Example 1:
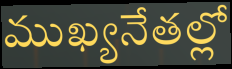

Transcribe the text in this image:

ముఖ్యనేతల్లో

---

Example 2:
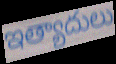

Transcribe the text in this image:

ఇత్యాదులు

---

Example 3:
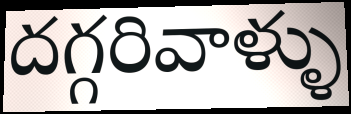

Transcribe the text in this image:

దగ్గరివాళ్ళు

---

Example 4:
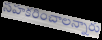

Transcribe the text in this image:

సహకరించాలన్నారు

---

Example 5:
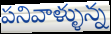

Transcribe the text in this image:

పనివాళ్ళున్న